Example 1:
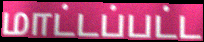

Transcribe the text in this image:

மாட்டப்பட்ட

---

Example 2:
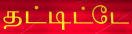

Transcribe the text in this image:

தட்டிட்டே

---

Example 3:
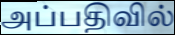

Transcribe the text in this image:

அப்பதிவில்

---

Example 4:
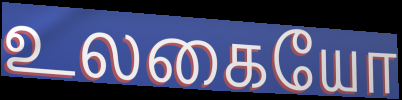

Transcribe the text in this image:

உலகையோ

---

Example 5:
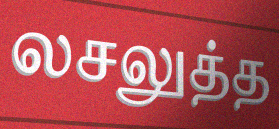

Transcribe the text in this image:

லசலுத்த